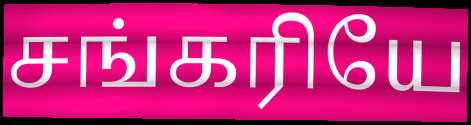
சங்கரியே